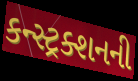
કન્સ્ટ્રક્શનની